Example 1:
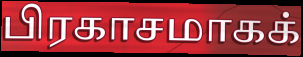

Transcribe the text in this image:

பிரகாசமாகக்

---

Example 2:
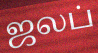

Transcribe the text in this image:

ஜலப்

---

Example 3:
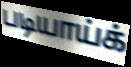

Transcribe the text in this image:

படியாய்க்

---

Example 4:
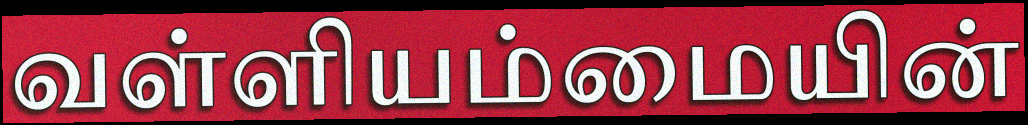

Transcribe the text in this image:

வள்ளியம்மையின்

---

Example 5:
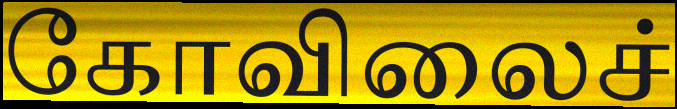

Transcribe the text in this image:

கோவிலைச்